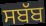
ਸਬੱਬ